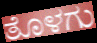
ತೊಳಗು